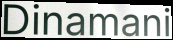
Dinamani